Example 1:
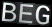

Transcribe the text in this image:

BEG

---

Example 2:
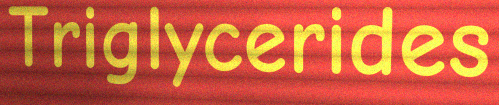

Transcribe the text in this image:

Triglycerides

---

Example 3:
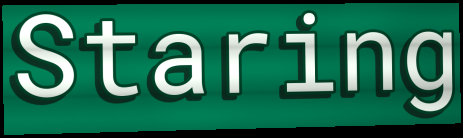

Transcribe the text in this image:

Staring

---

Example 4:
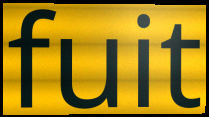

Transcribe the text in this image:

fuit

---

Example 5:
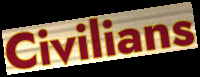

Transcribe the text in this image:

Civilians